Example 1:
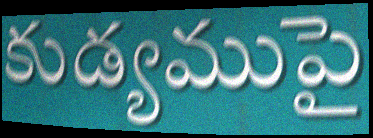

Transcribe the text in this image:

కుడ్యముపై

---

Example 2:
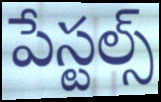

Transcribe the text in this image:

పేస్టల్స్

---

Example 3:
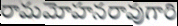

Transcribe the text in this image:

రామమోహనరావుగారి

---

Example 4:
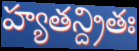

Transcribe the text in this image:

హ్యతన్ద్రితః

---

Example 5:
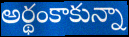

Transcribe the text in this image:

అర్థంకాకున్నా